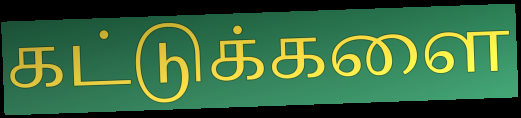
கட்டுக்களை